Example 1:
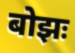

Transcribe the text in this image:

बोझः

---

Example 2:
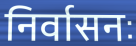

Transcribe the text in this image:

निर्वासनः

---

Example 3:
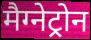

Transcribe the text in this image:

मैग्नेट्रोन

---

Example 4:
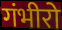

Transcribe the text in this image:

गंभीरो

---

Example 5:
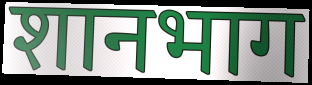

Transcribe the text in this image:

शानभाग